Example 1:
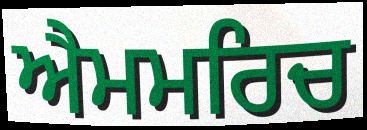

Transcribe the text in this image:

ਐਮਮਰਿਚ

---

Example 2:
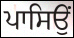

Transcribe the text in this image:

ਪਾਸਿਉਂ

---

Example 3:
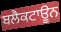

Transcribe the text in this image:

ਬਲੈਕਟਾਊਨ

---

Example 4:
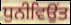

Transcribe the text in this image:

ਧੁਨੀਵਿਉਂਤ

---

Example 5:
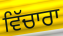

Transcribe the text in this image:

ਵਿੱਚਾਰਾ